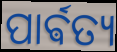
ପାର୍ଵତ୍ଯ